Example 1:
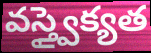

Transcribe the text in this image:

వస్త్వైక్యత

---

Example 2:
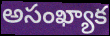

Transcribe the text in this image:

అసంఖ్యాక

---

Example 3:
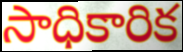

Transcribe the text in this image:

సాధికారిక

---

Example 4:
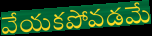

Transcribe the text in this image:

వేయకపోవడమే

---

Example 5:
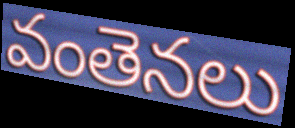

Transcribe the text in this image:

వంతెనలు